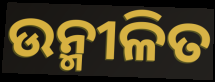
ଉନ୍ମୀଳିତ